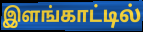
இளங்காட்டில்